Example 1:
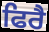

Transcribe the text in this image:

ਫਿਰੈ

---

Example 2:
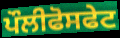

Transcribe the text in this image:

ਪੌਲੀਫੋਸਫੇਟ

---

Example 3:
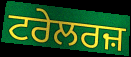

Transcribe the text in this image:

ਟਰੇਲਰਜ਼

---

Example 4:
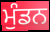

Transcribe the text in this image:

ਮੁੰਡਨ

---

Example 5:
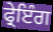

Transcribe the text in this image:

ਫ੍ਰੇਇੰਗ